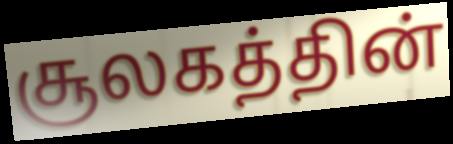
சூலகத்தின்